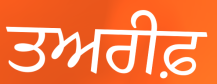
ਤਅਰੀਫ਼